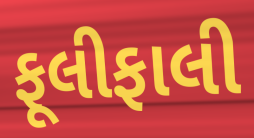
ફૂલીફાલી